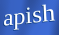
apish